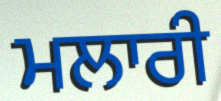
ਮਲਾਰੀ